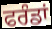
ਫਰੰਡਾਂ